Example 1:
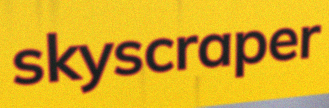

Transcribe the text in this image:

skyscraper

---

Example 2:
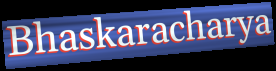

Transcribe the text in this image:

Bhaskaracharya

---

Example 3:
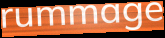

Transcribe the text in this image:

rummage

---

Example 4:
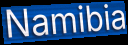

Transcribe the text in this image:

Namibia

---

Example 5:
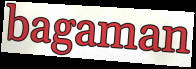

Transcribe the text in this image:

bagaman